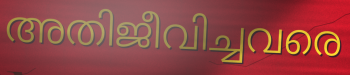
അതിജീവിച്ചവരെ